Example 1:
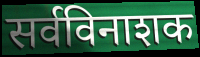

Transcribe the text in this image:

सर्वविनाशक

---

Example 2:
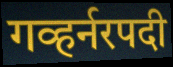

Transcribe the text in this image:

गव्हर्नरपदी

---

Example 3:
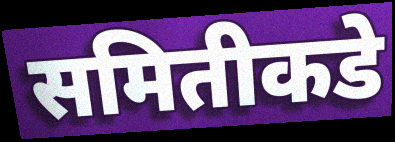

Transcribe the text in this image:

समितीकडे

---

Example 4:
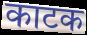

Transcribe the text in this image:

काटक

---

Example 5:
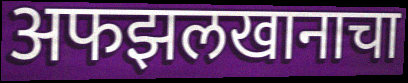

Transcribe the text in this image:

अफझलखानाचा